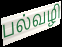
பல்வழி